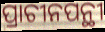
ପ୍ରାଚୀନପନ୍ଥୀ